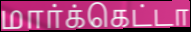
மார்க்கெட்டா